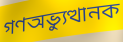
গণঅভ্যুত্থানক